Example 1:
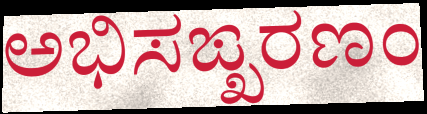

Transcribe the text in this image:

ಅಭಿಸಙ್ಖರಣಂ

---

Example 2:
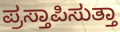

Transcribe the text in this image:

ಪ್ರಸ್ತಾಪಿಸುತ್ತಾ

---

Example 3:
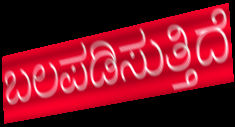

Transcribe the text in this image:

ಬಲಪಡಿಸುತ್ತಿದೆ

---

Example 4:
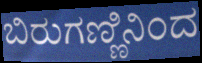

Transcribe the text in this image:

ಬಿರುಗಣ್ಣಿನಿಂದ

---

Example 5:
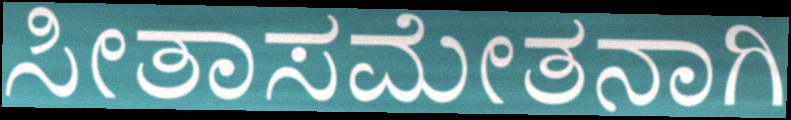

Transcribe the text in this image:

ಸೀತಾಸಮೇತನಾಗಿ